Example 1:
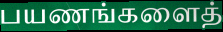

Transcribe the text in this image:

பயணங்களைத்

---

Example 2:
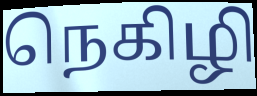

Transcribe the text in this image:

நெகிழி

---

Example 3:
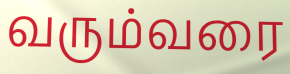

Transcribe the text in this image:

வரும்வரை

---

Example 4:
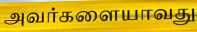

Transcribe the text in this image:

அவர்களையாவது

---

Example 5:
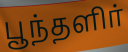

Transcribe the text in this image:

பூந்தளிர்